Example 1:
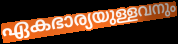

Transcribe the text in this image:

ഏകഭാര്യയുള്ളവനും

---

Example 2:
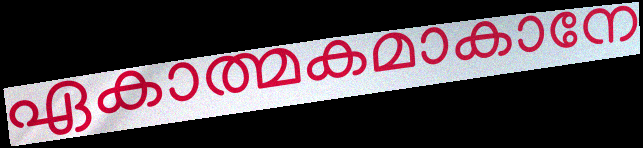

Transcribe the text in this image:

ഏകാത്മകമാകാനേ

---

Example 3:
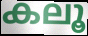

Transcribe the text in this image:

കലൂ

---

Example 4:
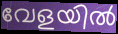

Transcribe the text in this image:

വേളയിൽ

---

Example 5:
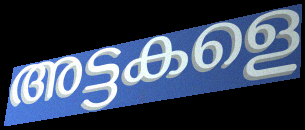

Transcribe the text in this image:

അട്ടകളെ